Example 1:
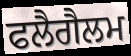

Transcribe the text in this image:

ਫਲੈਗੈਲਮ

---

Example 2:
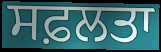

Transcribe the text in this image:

ਸਫ਼ਲਤਾ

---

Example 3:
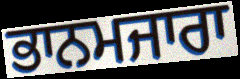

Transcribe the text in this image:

ਭਾਨਮਜਾਰਾ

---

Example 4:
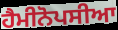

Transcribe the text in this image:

ਹੈਮੀਨੋਪਸੀਆ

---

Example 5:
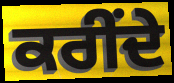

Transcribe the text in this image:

ਕਰੀਂਦੇ